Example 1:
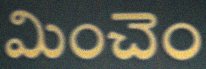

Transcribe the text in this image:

మించెం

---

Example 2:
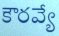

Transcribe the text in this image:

కౌరవ్యే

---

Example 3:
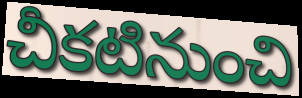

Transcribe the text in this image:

చీకటినుంచి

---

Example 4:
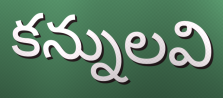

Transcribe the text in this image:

కన్నులవి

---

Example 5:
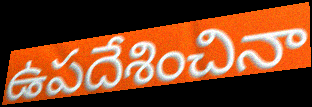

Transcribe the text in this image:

ఉపదేశించినా